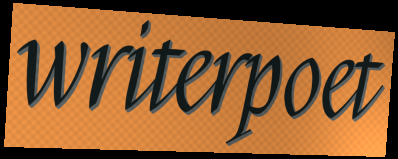
writerpoet